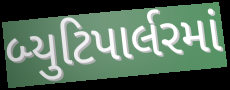
બ્યુટિપાર્લરમાં